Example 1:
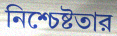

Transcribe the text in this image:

নিশ্চেষ্টতার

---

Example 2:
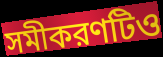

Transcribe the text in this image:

সমীকরণটিও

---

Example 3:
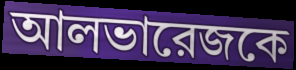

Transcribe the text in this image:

আলভারেজকে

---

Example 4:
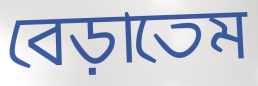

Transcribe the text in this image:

বেড়াতেম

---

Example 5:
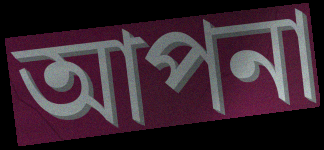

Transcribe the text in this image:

আপনা